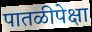
पातळीपेक्षा